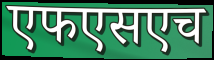
एफएसएच